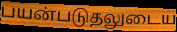
பயன்படுதலுடைய